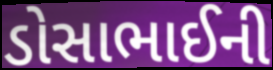
ડોસાભાઈની